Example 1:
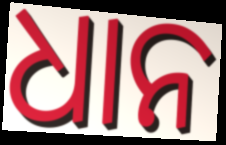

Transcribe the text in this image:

ଧାନ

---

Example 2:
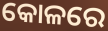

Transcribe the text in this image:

କୋଳରେ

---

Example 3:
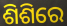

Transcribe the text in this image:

ଶିଶିରେ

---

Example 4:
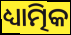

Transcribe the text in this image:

ଧ୍ୟାତ୍ମିକ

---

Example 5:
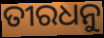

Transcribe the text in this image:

ତୀରଧନୁ